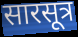
सारसूत्र